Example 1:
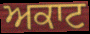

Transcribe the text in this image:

ਅਕਾਟ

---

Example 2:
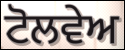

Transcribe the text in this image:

ਟੋਲਵੇਅ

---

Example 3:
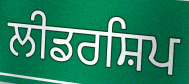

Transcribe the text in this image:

ਲੀਡਰਸ਼ਿਪ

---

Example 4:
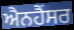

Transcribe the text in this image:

ਐਨਹੈਂਸਰ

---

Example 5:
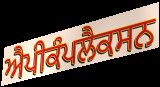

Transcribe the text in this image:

ਐਪੀਕੰਪਲੈਕਸਨ